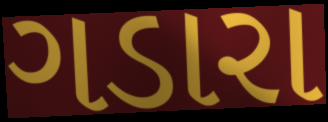
ગડારા